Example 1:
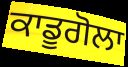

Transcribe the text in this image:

ਕਾਡੂਗੋਲਾ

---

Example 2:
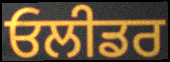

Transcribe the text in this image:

ਓਲੀਡਰ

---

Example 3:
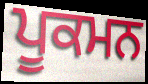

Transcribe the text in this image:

ਪੂਕਮਨ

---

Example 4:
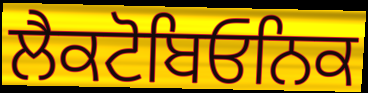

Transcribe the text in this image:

ਲੈਕਟੋਬਿਓਨਿਕ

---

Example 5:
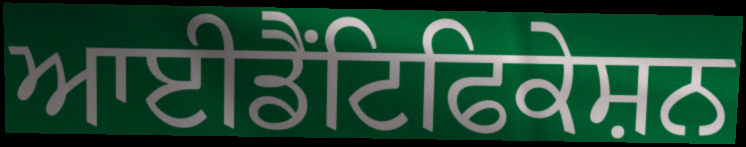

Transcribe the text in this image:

ਆਈਡੈਂਟਿਫਿਕੇਸ਼ਨ